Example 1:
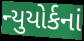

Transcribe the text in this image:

ન્યુયોર્કનાં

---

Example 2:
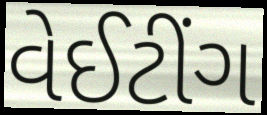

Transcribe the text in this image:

વેઈટીંગ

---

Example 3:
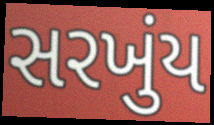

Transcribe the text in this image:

સરખુંય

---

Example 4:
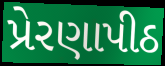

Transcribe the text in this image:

પ્રેરણાપીઠ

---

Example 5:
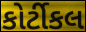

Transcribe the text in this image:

કોર્ટીકલ